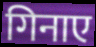
गिनाए